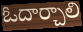
ఓదార్చాలి